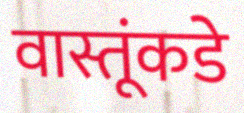
वास्तूंकडे